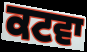
ਕਟਵਾ